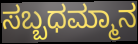
ಸಬ್ಬಧಮ್ಮಾನ